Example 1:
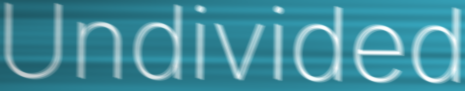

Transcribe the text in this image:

Undivided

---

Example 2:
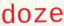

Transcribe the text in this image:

doze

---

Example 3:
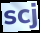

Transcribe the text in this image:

scj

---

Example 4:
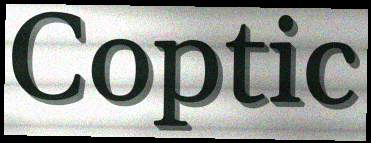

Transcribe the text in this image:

Coptic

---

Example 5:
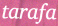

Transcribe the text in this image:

tarafa